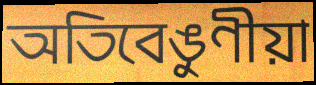
অতিবেঙুণীয়া